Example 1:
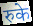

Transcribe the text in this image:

रुके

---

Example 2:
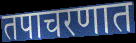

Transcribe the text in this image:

तपाचरणात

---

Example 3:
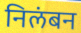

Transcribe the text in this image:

निलंबन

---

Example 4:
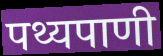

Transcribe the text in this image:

पथ्यपाणी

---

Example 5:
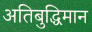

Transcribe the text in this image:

अतिबुद्धिमान